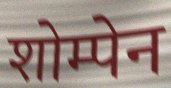
शोम्पेन